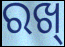
ରଖ୍